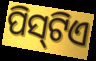
ପିସ୍‌ଟିଏ